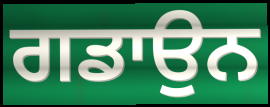
ਗਡਾਉਨ